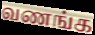
வணங்க